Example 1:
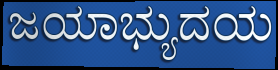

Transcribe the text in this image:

ಜಯಾಭ್ಯುದಯ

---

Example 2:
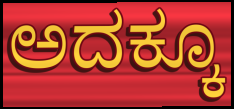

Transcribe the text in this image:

ಅದಕ್ಕೂ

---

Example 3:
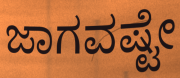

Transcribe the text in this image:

ಜಾಗವಷ್ಟೇ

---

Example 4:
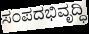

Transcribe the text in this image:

ಸಂಪದಭಿವೃದ್ಧಿ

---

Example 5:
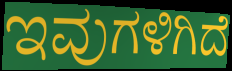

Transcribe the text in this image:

ಇವುಗಳಿಗಿದೆ